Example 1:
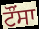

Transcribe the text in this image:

ਟੌਂਸਾ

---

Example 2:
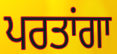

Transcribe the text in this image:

ਪਰਤਾਂਗਾ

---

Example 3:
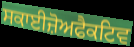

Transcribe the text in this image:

ਸਕਾਈਜ਼ੋਅਫੈਕਟਿਵ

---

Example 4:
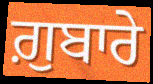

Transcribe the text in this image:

ਗ਼ੁਬਾਰੇ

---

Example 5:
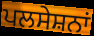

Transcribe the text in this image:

ਪਲਸੇਸ਼ਨਾਂ